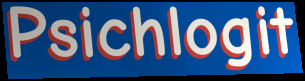
Psichlogit